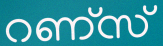
റണ്സ്